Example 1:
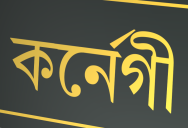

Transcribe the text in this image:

কর্নেগী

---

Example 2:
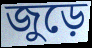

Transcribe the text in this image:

জুড়ে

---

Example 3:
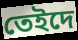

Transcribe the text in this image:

তেইদে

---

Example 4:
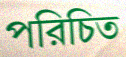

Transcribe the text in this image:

পরিচিত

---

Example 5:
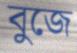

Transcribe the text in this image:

বুজে